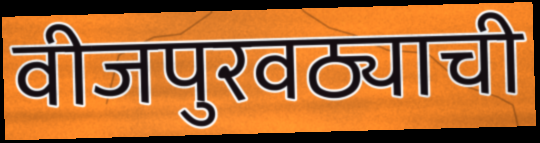
वीजपुरवठ्याची